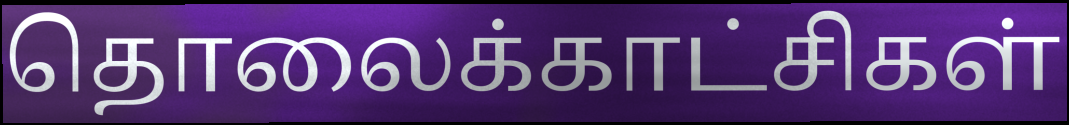
தொலைக்காட்சிகள்